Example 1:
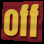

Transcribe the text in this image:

off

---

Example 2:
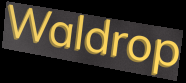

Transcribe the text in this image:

Waldrop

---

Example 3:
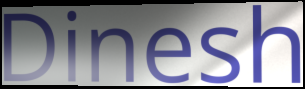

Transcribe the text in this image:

Dinesh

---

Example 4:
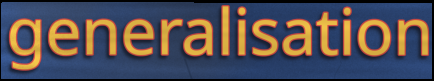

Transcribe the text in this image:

generalisation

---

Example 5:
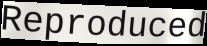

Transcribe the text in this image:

Reproduced